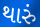
થારું